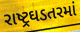
રાષ્ટ્રઘડતરમાં